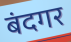
बंदगर